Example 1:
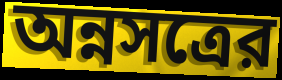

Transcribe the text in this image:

অন্নসত্রের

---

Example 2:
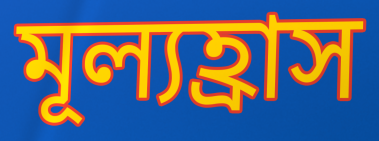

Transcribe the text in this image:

মূল্যহ্রাস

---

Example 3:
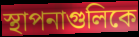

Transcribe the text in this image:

স্থাপনাগুলিকে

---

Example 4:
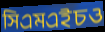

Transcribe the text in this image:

সিএমএইচও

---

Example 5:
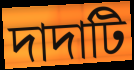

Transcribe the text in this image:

দাদাটি